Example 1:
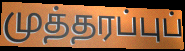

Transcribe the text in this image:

முத்தரப்புப்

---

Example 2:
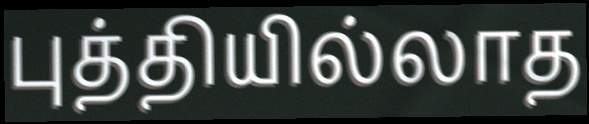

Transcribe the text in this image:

புத்தியில்லாத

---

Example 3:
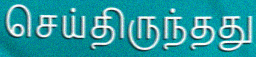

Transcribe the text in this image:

செய்திருந்தது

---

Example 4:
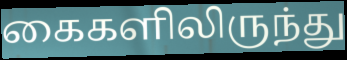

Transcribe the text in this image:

கைகளிலிருந்து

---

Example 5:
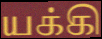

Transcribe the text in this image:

யக்கி